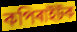
কপিৰাইটক